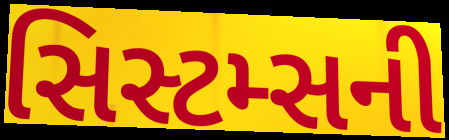
સિસ્ટમ્સની